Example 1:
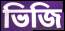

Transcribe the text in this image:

ভিজি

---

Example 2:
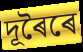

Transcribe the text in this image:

দূৰৈৰে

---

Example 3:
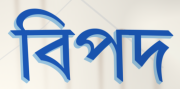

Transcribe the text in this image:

বিপদ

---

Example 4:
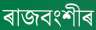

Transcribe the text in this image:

ৰাজবংশীৰ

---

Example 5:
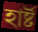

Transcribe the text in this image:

হাৰ্ষ্ট